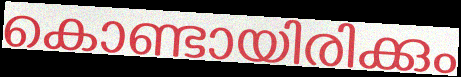
കൊണ്ടായിരിക്കും